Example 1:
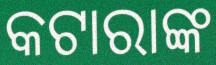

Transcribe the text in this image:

କଟାରାଙ୍କ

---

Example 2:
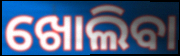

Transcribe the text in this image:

ଖୋଲିବା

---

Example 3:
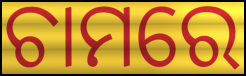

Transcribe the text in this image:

ଚାମରେ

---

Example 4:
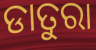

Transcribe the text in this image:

ଡାତୁରା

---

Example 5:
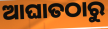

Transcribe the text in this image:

ଆଘାତଠାରୁ